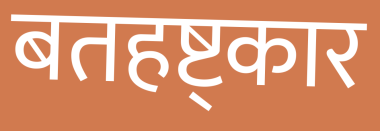
बतहष्ट्कार